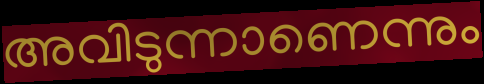
അവിടുന്നാണെന്നും